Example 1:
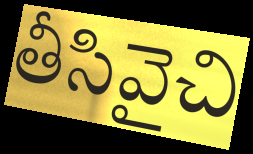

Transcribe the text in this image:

తీసివైచి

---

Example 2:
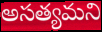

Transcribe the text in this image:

అసత్యమని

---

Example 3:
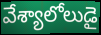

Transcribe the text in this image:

వేశ్యాలోలుడై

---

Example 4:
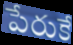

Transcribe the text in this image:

పేరుకే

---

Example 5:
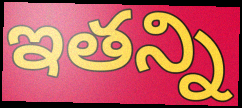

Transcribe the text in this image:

ఇతన్ని